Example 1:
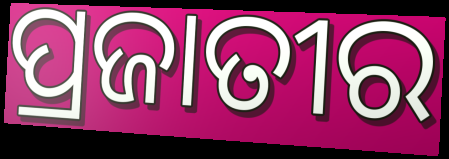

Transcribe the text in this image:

ପ୍ରଜାତୀର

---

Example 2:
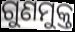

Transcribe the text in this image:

ଗୁଣମୁକ୍ତ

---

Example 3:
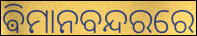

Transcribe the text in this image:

ଵିମାନବନ୍ଦରରେ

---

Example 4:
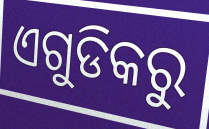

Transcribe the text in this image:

ଏଗୁଡିକରୁ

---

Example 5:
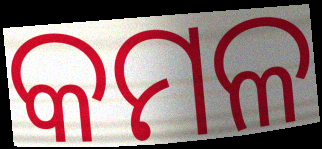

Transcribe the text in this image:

କମଳ